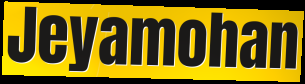
Jeyamohan